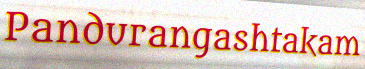
Pandurangashtakam